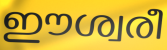
ഈശ്വരീ